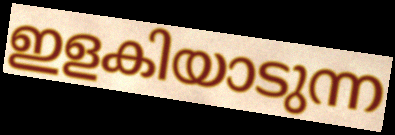
ഇളകിയാടുന്ന